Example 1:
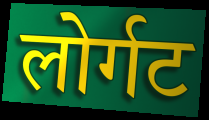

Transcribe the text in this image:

लोर्गट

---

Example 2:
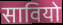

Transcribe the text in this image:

सावियो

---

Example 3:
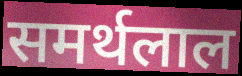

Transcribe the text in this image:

समर्थलाल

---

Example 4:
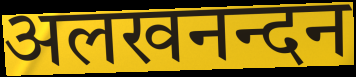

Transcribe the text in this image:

अलखनन्दन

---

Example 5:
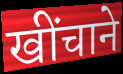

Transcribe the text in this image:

खींचाने